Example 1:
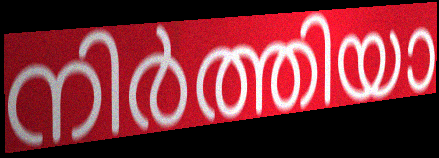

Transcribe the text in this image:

നിർത്തിയാ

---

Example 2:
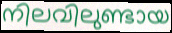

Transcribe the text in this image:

നിലവിലുണ്ടായ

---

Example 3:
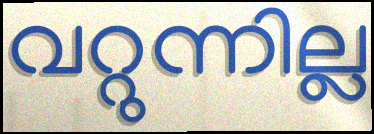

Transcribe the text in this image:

വറ്റുന്നില്ല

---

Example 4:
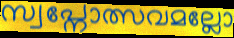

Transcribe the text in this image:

സ്വപ്നോത്സവമല്ലോ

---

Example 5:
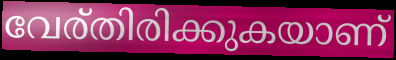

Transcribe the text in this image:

വേര്തിരിക്കുകയാണ്